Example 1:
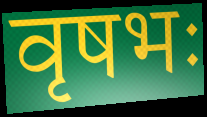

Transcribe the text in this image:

वृषभः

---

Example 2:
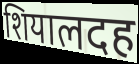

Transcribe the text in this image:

शियालदह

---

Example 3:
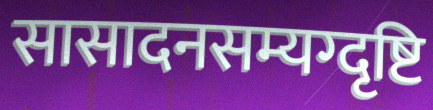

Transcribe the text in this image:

सासादनसम्यग्दृष्टि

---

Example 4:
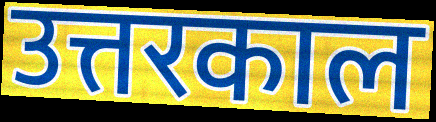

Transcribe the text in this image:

उत्तरकाल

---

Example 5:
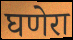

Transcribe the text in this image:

घणेरा